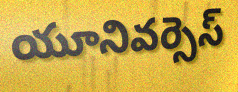
యూనివర్సెస్